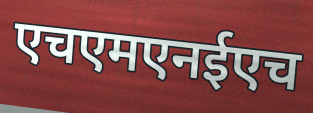
एचएमएनईएच